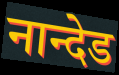
नान्देड